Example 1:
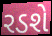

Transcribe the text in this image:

રડશે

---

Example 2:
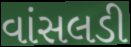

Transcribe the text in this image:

વાંસલડી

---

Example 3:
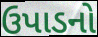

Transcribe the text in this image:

ઉપાડનો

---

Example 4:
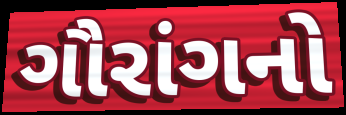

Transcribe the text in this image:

ગૌરાંગનો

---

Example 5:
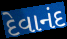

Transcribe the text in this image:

દેવાનંદ